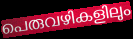
പെരുവഴികളിലും